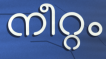
നീറ്റം